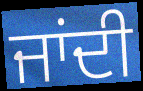
ਜਾਂਦੀ